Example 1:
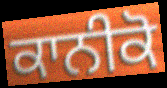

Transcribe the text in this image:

ਕਾਨੀਕੋ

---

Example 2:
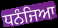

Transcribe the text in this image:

ਧਨੰਜਿਆ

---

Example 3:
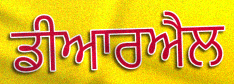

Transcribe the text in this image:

ਡੀਆਰਐਲ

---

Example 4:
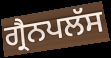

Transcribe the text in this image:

ਗ੍ਰੈਨਪਲੱਸ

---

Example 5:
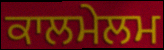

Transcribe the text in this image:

ਕਾਲਮੇਲਮ